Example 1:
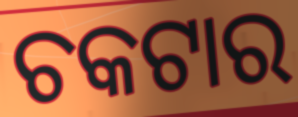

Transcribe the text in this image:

ଚକଟାର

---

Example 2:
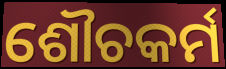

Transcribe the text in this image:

ଶୌଚକର୍ମ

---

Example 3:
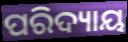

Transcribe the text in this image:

ପରିଦ୍ୟାୟ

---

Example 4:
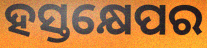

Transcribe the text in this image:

ହସ୍ତକ୍ଷେପର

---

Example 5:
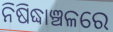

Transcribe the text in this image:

ନିଷିଦ୍ଧାଞ୍ଚଳରେ